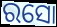
ରସୋ